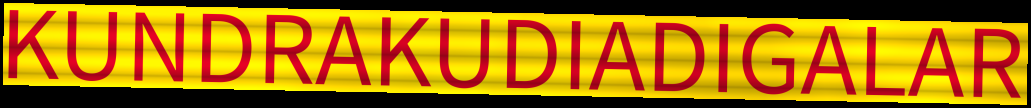
KUNDRAKUDIADIGALAR